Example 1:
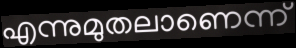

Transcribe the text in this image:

എന്നുമുതലാണെന്ന്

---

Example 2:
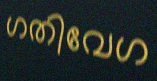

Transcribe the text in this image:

ഗതിവേഗ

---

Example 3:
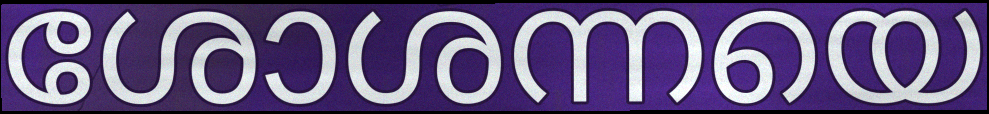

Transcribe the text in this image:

ശോശന്നയെ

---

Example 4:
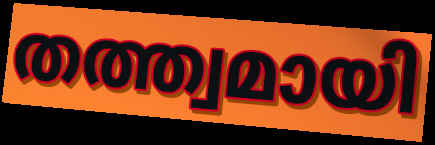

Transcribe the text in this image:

തത്ത്വമായി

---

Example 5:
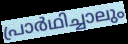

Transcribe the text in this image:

പ്രാർഥിച്ചാലും